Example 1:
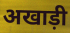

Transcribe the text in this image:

अखाड़ी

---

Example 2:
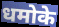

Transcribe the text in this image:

धमोके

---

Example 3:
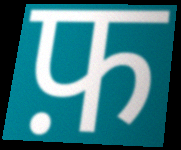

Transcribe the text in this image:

फ़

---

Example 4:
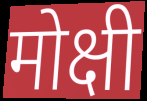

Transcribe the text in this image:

मोक्षी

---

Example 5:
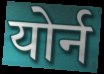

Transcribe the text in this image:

योर्न